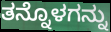
ತನ್ನೊಳಗನ್ನು